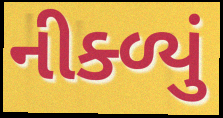
નીક્ળ્યું